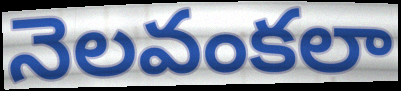
నెలవంకలా